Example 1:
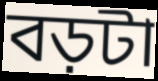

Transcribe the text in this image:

বড়টা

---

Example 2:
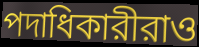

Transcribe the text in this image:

পদাধিকারীরাও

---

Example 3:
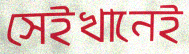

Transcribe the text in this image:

সেইখানেই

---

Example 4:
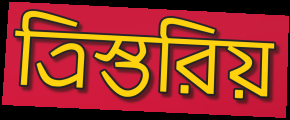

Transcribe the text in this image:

ত্রিস্তরিয়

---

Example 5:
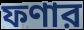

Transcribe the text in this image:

ফণার